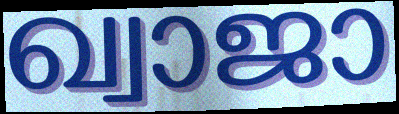
ഖ്വാജാ